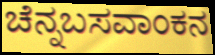
ಚೆನ್ನಬಸವಾಂಕನ